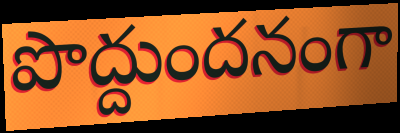
పొద్దుందనంగా